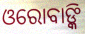
ଓରୋବାଙ୍କି